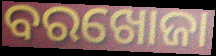
ବରଖୋଜା